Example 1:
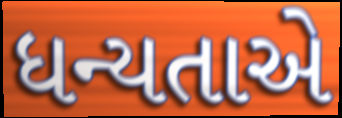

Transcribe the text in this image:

ધન્યતાએ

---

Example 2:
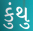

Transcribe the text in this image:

કુંથુ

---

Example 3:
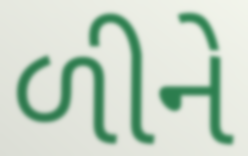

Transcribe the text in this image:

ળીને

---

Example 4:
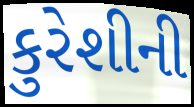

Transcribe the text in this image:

કુરેશીની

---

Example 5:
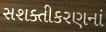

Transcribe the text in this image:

સશક્તીકરણનાં